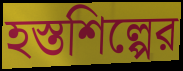
হস্তশিল্পের